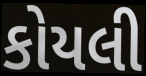
કોયલી